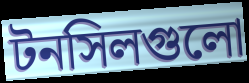
টনসিলগুলো